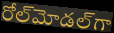
రోల్‌మోడల్‌గా